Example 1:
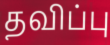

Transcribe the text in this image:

தவிப்பு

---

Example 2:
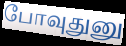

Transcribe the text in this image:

போவுதுனு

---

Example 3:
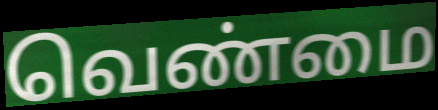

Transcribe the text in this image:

வெண்மை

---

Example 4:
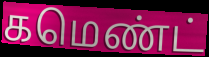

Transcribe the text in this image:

கமெண்ட்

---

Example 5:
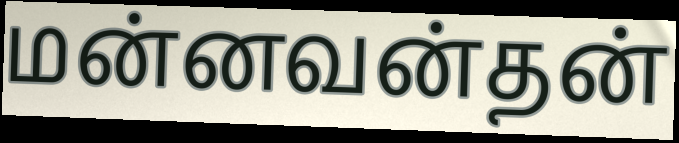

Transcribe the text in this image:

மன்னவன்தன்